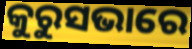
କୁରୁସଭାରେ